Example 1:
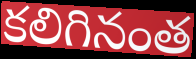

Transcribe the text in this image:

కలిగినంత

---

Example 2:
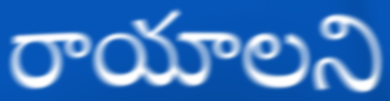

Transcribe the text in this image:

రాయాలని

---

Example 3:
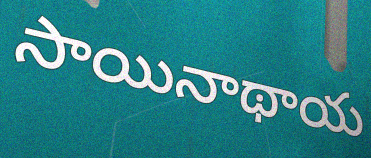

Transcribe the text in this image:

సాయినాథాయ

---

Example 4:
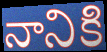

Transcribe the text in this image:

నానికి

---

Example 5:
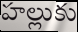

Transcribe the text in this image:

హల్లుకు